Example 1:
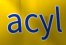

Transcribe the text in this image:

acyl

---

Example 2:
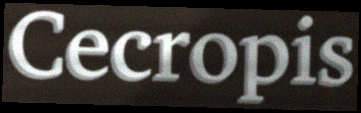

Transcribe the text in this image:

Cecropis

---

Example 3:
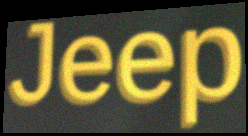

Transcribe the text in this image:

Jeep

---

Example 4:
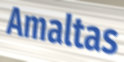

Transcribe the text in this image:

Amaltas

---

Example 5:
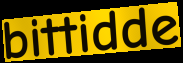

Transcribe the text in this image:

bittidde